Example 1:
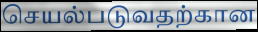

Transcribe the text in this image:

செயல்படுவதற்கான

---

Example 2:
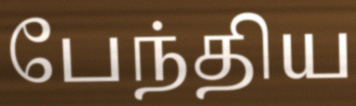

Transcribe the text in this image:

பேந்திய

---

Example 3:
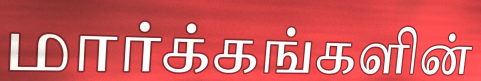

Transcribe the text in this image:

மார்க்கங்களின்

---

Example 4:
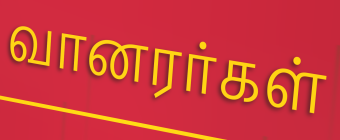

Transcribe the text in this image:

வானரர்கள்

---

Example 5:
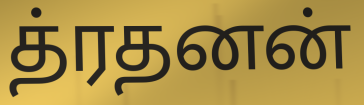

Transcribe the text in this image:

த்ரதனன்